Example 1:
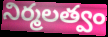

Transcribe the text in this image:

నిర్మలత్వం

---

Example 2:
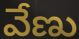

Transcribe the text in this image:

వేణు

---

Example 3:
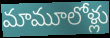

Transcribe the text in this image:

మామూలోళ్లు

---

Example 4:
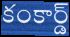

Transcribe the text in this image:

కంకార్డ్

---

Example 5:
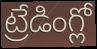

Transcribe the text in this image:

ట్రేడింగ్లో